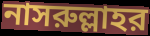
নাসরুল্লাহর